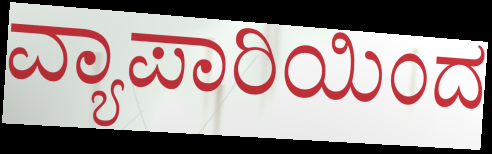
ವ್ಯಾಪಾರಿಯಿಂದ